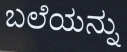
ಬಲೆಯನ್ನು